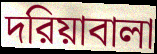
দরিয়াবালা